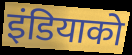
इंडियाको